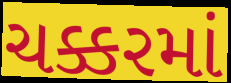
ચક્કરમાં